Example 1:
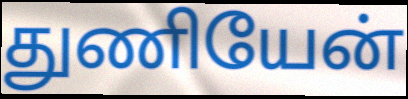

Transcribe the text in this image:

துணியேன்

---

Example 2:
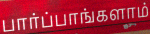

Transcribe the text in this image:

பார்ப்பாங்களாம்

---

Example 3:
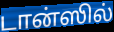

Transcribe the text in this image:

டான்ஸில்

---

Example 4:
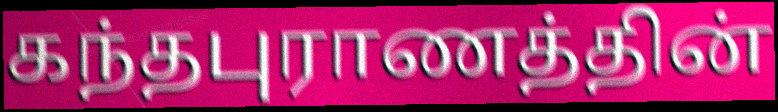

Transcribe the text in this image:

கந்தபுராணத்தின்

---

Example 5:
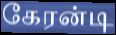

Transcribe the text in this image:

கேரன்டி